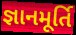
જ્ઞાનમૂર્તિ